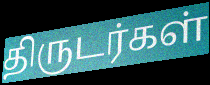
திருடர்கள்